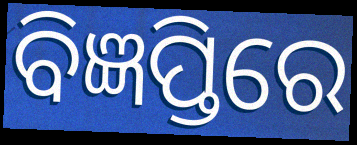
ବିଜ୍ଞପ୍ତିରେ